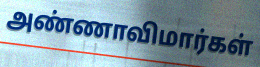
அண்ணாவிமார்கள்